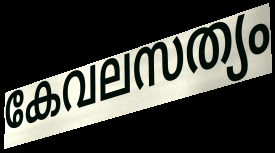
കേവലസത്യം